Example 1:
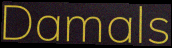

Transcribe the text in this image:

Damals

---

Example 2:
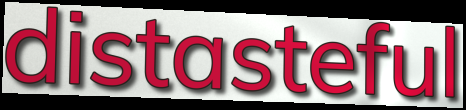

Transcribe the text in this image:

distasteful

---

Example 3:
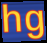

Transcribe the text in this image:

hg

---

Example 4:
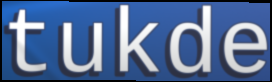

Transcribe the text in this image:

tukde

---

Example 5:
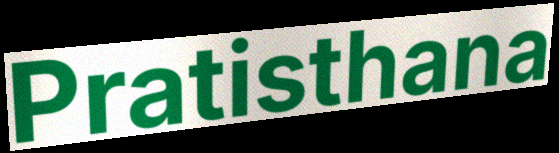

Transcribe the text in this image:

Pratisthana